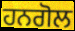
ਹਨਗੋਲ